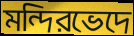
মন্দিরভেদে